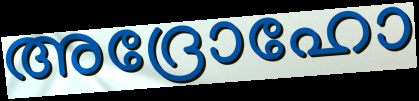
അദ്രോഹോ